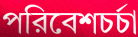
পরিবেশচর্চা